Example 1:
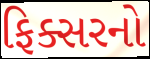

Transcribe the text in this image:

ફિક્સરનો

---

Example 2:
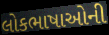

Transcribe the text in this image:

લોકભાષાઓની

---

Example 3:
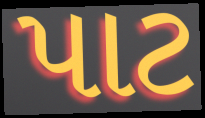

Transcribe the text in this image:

પાટ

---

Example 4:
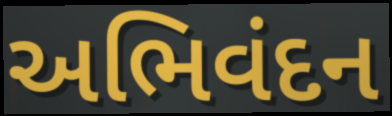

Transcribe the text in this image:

અભિવંદન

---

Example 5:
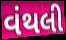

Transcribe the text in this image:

વંથલી